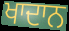
ਖਾਦਾਨ